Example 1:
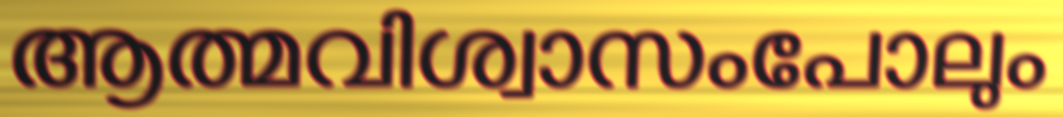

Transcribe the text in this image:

ആത്മവിശ്വാസംപോലും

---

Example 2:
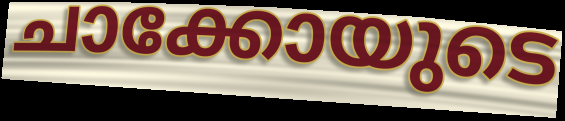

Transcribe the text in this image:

ചാക്കോയുടെ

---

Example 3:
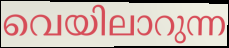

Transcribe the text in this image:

വെയിലാറുന്ന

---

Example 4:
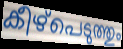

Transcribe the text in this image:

കീഴ്പെടുത്തും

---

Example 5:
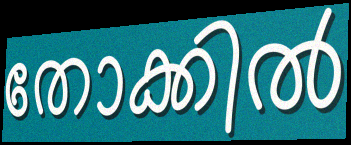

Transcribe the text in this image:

തോക്കിൽ